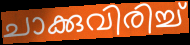
ചാക്കുവിരിച്ച്